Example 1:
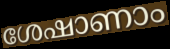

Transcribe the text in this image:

ശേഷാണാം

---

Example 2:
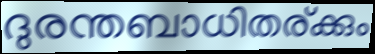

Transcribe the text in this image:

ദുരന്തബാധിതര്ക്കും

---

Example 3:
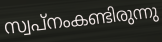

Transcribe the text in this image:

സ്വപ്നംകണ്ടിരുന്നു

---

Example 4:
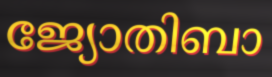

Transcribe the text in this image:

ജ്യോതിബാ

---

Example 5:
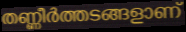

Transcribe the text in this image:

തണ്ണീർത്തടങ്ങളാണ്